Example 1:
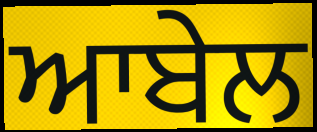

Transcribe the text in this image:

ਆਬੇਲ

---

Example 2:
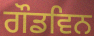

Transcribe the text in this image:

ਗੌਡਵਿਨ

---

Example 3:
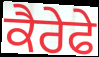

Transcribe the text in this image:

ਕੈਰੇਫੇ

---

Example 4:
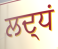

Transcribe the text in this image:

ਲਦ੍ਧਂ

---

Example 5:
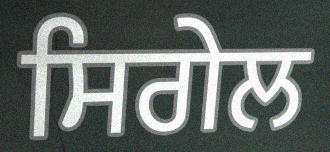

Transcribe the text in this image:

ਸਿਗੇਲ